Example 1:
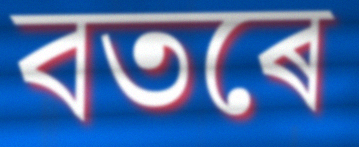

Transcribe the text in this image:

বতৰে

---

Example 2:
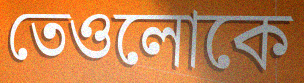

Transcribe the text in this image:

তেওলোকে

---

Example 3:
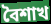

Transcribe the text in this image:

বৈশাখ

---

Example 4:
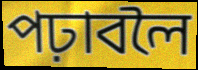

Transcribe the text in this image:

পঢ়াবলৈ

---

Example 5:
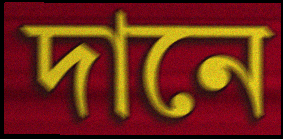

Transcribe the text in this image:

দানে